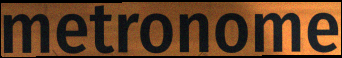
metronome